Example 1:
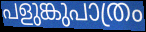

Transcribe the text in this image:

പളുങ്കുപാത്രം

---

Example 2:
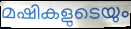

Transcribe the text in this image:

മഷികളുടെയും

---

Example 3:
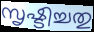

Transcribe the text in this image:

സൃഷ്ടിച്ചതു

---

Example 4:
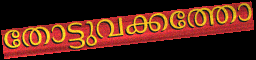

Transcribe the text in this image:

തോട്ടുവക്കത്തോ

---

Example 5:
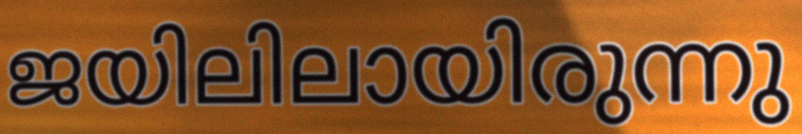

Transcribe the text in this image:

ജയിലിലായിരുന്നു